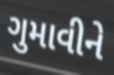
ગુમાવીને